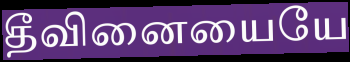
தீவினையையே